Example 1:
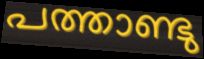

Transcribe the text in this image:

പത്താണ്ടു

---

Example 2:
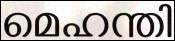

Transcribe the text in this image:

മെഹന്തി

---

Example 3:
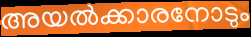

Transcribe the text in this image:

അയൽക്കാരനോടും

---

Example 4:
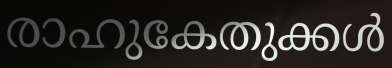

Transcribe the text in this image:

രാഹുകേതുക്കൾ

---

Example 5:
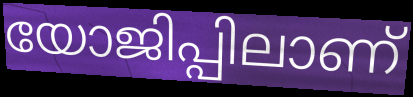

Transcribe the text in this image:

യോജിപ്പിലാണ്